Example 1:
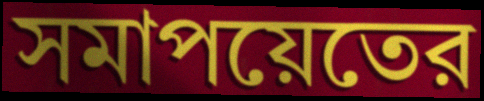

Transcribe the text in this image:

সমাপয়েতের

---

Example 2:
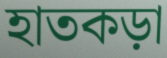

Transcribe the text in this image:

হাতকড়া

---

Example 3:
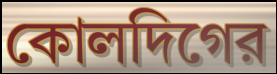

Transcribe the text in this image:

কোলদিগের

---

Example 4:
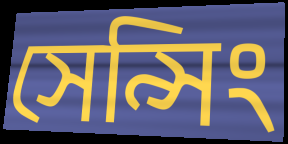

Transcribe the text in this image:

সেন্সিং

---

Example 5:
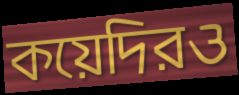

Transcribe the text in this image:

কয়েদিরও